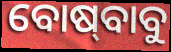
ବୋଷ୍‍ବାବୁ